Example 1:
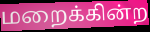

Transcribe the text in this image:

மறைக்கின்ற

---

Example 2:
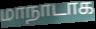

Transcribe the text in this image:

மாநாடாக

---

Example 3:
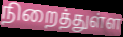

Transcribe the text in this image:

நிறைத்துள்ள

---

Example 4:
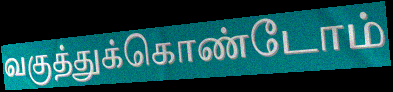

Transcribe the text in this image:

வகுத்துக்கொண்டோம்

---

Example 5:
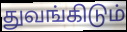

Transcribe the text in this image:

துவங்கிடும்